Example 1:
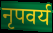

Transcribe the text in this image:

नृपवर्य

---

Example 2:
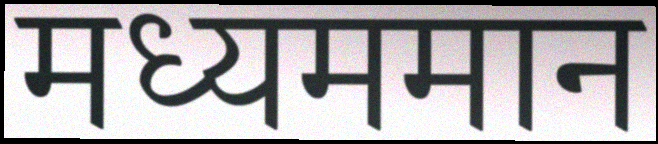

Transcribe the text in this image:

मध्यममान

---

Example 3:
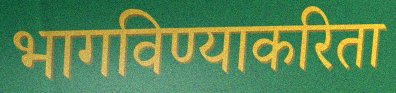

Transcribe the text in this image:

भागविण्याकरिता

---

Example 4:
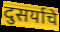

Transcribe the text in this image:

दुसर्याचे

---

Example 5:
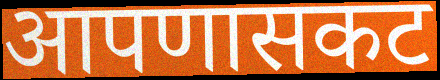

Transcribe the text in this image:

आपणासकट